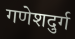
गणेशदुर्ग